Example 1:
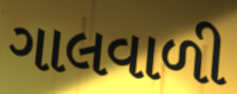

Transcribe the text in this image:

ગાલવાળી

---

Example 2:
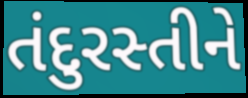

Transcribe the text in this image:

તંદુરસ્તીને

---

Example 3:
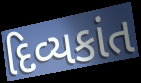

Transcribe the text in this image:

દિવ્યકાંત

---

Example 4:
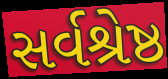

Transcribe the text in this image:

સર્વશ્રેષ્ઠ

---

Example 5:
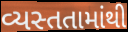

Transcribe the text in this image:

વ્યસ્તતામાંથી